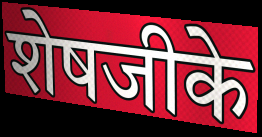
शेषजीके